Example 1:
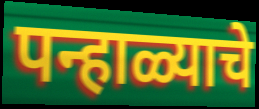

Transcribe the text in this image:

पन्हाळ्याचे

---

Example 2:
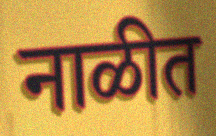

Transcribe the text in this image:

नाळीत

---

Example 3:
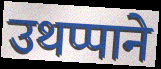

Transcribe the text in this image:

उथप्पाने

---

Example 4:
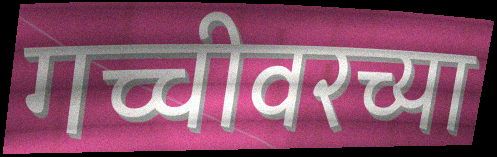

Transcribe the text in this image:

गच्चीवरच्या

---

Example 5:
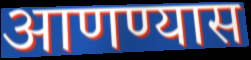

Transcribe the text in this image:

आणण्यास